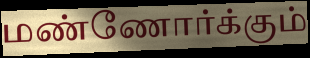
மண்ணோர்க்கும்